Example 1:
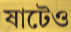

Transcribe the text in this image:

ষাটেও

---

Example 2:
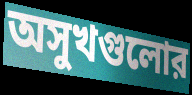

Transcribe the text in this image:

অসুখগুলোর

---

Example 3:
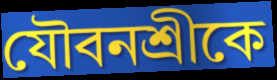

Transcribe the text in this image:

যৌবনশ্রীকে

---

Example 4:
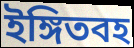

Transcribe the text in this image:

ইঙ্গিতবহ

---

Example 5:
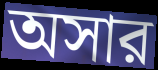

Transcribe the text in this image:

অসার